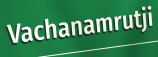
Vachanamrutji